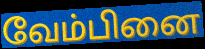
வேம்பினை